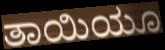
ತಾಯಿಯೂ